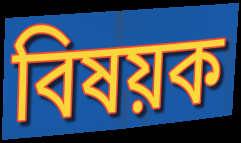
বিষয়ক